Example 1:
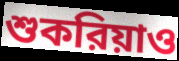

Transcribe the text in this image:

শুকরিয়াও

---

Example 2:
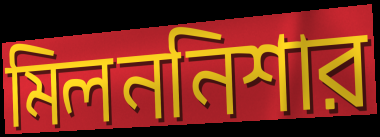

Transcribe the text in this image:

মিলননিশার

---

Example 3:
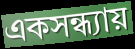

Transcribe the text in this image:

একসন্ধ্যায়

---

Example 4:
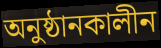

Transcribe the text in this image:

অনুষ্ঠানকালীন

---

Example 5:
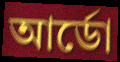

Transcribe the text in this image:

আর্ডো